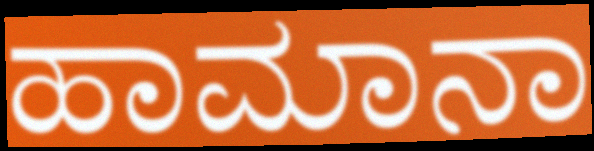
ಹಾಮಾನಾ